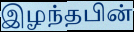
இழந்தபின்